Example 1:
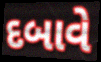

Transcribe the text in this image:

દબાવે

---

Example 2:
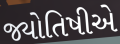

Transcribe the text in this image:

જ્યોતિષીએ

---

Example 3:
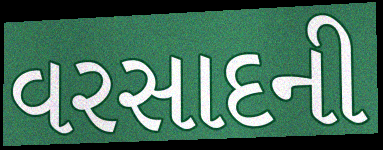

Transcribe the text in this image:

વરસાદની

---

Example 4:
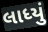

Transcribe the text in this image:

લાધ્યું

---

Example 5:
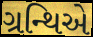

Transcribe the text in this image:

ગ્રન્થિએ